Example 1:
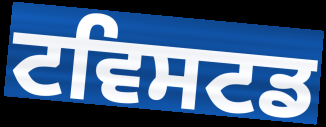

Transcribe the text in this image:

ਟਵਿਸਟਡ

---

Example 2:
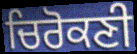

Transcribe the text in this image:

ਚਿਰੋਕਣੀ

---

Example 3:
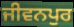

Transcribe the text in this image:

ਜੀਵਨਪੁਰ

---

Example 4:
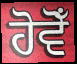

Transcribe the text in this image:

ਹੋਵੋਁ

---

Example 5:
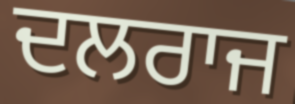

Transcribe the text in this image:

ਦਲਰਾਜ